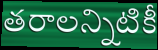
తరాలన్నిటికీ